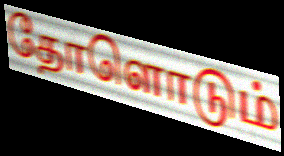
தோளொடும்